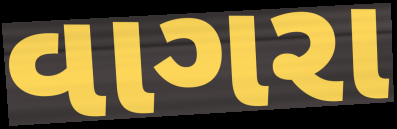
વાગરા